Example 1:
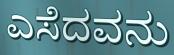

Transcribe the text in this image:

ಎಸೆದವನು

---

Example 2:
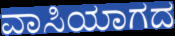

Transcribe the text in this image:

ವಾಸಿಯಾಗದ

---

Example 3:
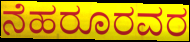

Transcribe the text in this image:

ನೆಹರೂರವರ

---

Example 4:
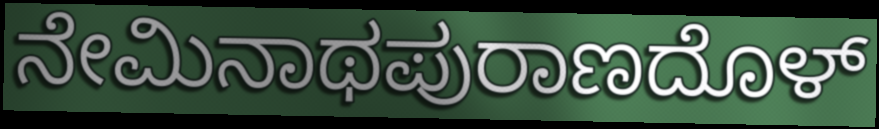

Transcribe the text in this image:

ನೇಮಿನಾಥಪುರಾಣದೊಳ್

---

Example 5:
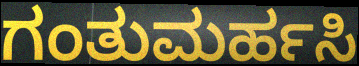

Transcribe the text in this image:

ಗಂತುಮರ್ಹಸಿ